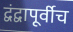
द्वंद्वापूर्वीच